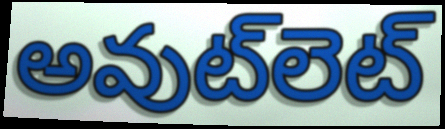
అవుట్‌లెట్